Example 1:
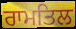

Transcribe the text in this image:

ਰਾਮਤਿਲ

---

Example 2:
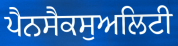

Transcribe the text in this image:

ਪੈਨਸੈਕਸੁਅਲਿਟੀ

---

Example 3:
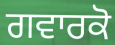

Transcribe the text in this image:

ਗਵਾਰਕੋ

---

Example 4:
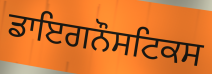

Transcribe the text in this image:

ਡਾਇਗਨੌਸਟਿਕਸ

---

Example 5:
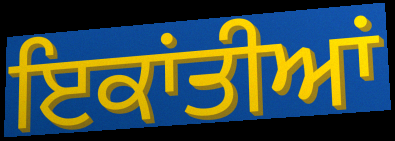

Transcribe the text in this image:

ਇਕਾਂਤੀਆਂ